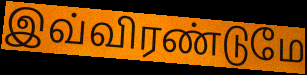
இவ்விரண்டுமே